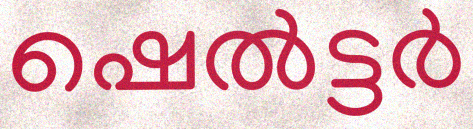
ഷെൽട്ടർ